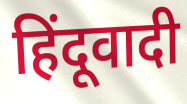
हिंदूवादी